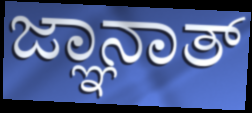
ಜ್ಞಾನಾತ್